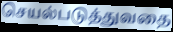
செயல்படுத்துவதை